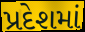
પ્રદેશમાં